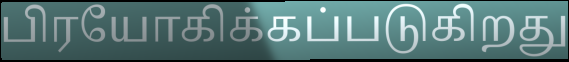
பிரயோகிக்கப்படுகிறது